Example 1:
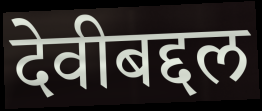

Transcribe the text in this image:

देवीबद्दल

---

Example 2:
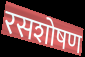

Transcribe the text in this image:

रसशोषण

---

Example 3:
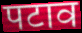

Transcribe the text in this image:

पटाव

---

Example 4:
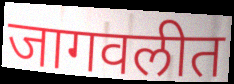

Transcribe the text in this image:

जागवलीत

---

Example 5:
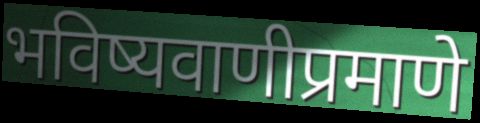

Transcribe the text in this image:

भविष्यवाणीप्रमाणे